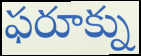
ఫరూక్ను